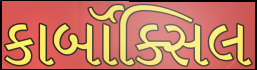
કાર્બૉક્સિલ